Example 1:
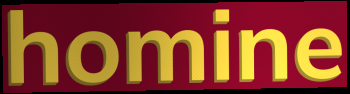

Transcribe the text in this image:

homine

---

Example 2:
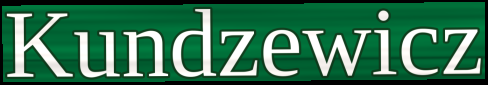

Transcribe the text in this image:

Kundzewicz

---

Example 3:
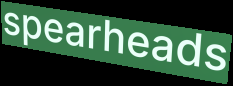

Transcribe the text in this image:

spearheads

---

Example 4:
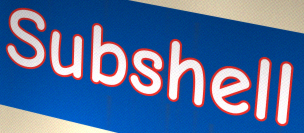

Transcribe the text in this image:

Subshell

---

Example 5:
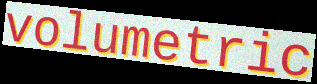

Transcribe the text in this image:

volumetric